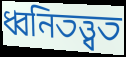
ধ্বনিতত্ত্বত